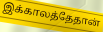
இக்காலத்தேதான்